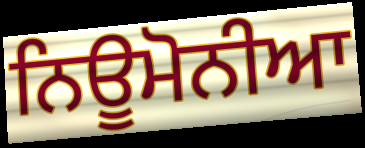
ਨਿਊਮੋਨੀਆ